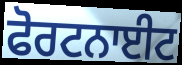
ਫੋਰਟਨਾਈਟ